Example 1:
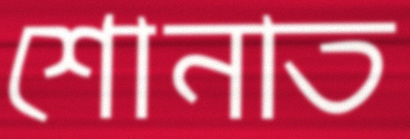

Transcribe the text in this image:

শোনাত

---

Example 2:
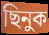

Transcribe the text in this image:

ছিনুক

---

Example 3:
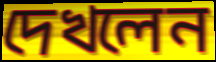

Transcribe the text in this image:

দেখলেন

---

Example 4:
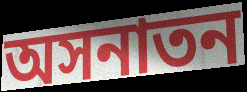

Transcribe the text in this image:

অসনাতন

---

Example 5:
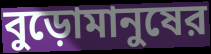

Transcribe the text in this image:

বুড়োমানুষের